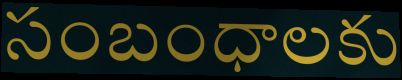
సంబంధాలకు